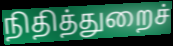
நிதித்துறைச்